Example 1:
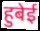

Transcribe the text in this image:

हुबेई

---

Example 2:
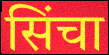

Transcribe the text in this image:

सिंचा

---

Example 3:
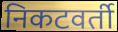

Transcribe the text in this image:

निकटवर्ती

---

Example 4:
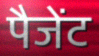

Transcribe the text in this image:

पैजेंट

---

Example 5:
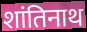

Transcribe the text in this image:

शांतिनाथ